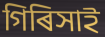
গিৰিসাই